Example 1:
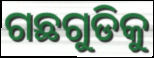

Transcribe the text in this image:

ଗଛଗୁଡିକୁ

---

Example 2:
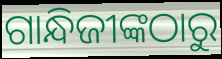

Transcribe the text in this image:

ଗାନ୍ଧିଜୀଙ୍କଠାରୁ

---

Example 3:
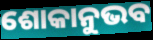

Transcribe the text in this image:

ଶୋକାନୁଭବ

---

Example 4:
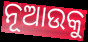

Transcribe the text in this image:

ନୂଆଉକୁ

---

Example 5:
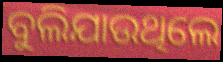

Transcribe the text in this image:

ବୁଲିଯାଉଥିଲେ